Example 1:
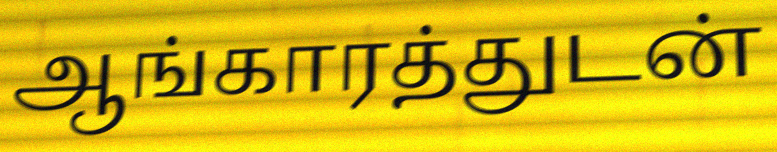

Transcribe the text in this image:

ஆங்காரத்துடன்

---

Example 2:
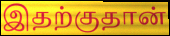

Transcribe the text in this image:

இதற்குதான்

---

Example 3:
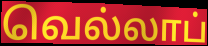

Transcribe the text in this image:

வெல்லாப்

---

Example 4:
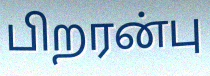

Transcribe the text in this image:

பிறரன்பு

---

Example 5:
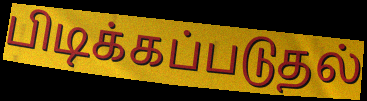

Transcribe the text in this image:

பிடிக்கப்படுதல்